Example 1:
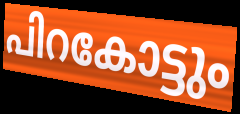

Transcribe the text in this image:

പിറകോട്ടും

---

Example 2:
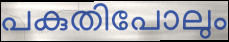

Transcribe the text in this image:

പകുതിപോലും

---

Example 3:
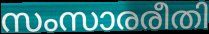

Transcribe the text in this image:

സംസാരരീതി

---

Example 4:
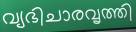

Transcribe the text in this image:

വ്യഭിചാരവൃത്തി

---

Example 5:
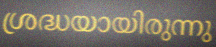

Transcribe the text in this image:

ശ്രദ്ധയായിരുന്നു